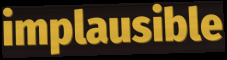
implausible